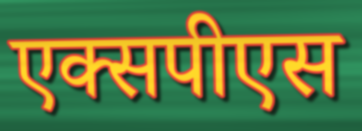
एक्सपीएस